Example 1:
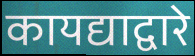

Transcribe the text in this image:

कायद्याद्वारे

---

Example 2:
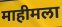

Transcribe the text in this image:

माहीमला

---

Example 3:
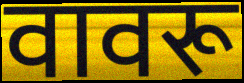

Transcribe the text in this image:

वावरू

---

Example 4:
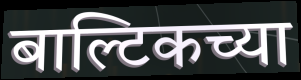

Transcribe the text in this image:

बाल्टिकच्या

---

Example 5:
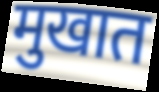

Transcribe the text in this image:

मुखात